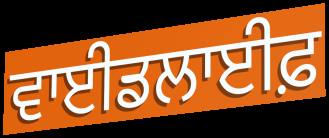
ਵਾਈਡਲਾਈਫ਼